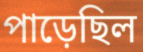
পাড়েছিল